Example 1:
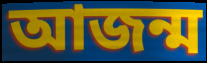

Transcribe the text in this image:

আজন্ম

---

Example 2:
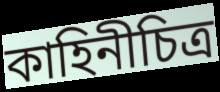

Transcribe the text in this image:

কাহিনীচিত্র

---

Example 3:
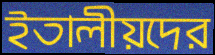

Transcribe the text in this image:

ইতালীয়দের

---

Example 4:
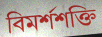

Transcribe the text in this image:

বিমর্শশক্তি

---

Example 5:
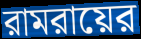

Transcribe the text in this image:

রামরায়ের